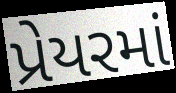
પ્રેયરમાં